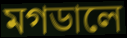
মগডালে